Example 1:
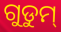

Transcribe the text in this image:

ଗୁଡୁମ୍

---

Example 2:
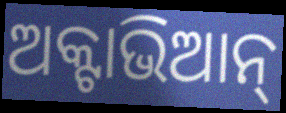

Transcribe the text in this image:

ଅକ୍ଟାଭିଆନ୍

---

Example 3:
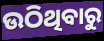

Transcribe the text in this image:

ଉଠିଥିବାରୁ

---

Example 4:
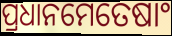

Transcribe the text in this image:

ପ୍ରଧାନମେତେଷାଂ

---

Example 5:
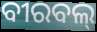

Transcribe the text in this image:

ବୀରବଲ୍